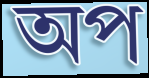
অপ